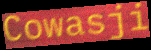
Cowasji